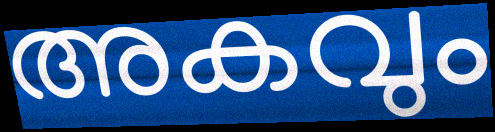
അകവും